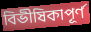
বিভীষিকাপূর্ণ